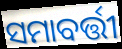
ସମାବର୍ତ୍ତୀ